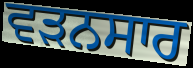
ਵੜਨਸਾਰ